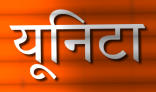
यूनिटा